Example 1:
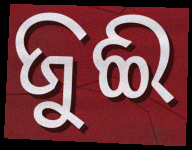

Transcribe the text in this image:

ଜୁଈ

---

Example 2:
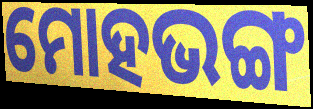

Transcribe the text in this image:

ମୋହଭଙ୍ଗ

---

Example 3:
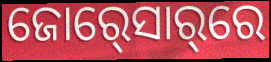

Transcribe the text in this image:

ଜୋର୍‍ସୋର୍‌ରେ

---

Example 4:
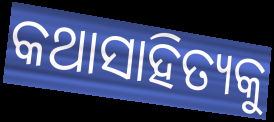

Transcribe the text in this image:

କଥାସାହିତ୍ୟକୁ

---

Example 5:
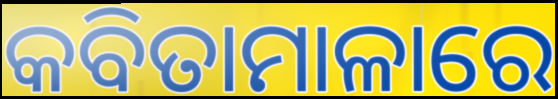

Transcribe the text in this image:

କବିତାମାଳାରେ